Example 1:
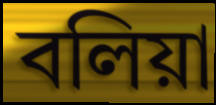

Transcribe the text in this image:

বলিয়া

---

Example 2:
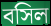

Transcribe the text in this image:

বসিল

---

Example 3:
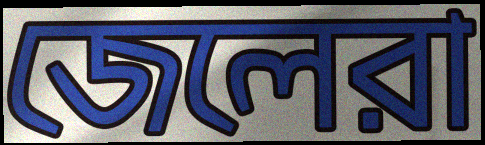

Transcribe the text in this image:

জেলেরা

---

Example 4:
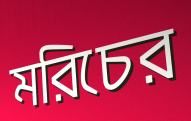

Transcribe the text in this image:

মরিচের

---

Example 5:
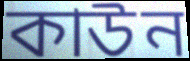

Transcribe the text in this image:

কাউন